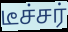
டீச்சர்